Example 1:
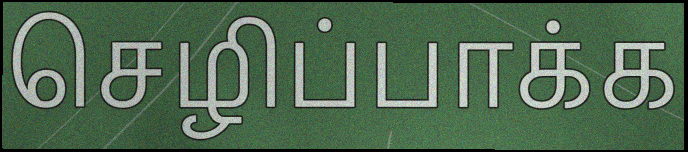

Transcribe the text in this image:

செழிப்பாக்க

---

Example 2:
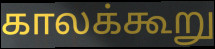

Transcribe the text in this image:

காலக்கூறு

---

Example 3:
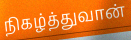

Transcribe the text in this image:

நிகழ்த்துவான்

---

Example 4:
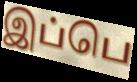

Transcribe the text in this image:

இப்பெ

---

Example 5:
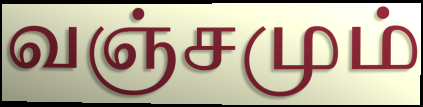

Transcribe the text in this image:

வஞ்சமும்